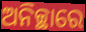
ଅନିଚ୍ଛାରେ